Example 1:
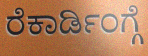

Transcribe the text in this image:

ರೆಕಾರ್ಡಿಂಗ್ಗೆ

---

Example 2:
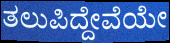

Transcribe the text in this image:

ತಲುಪಿದ್ದೇವೆಯೇ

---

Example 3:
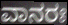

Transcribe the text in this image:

ವಾನರಃ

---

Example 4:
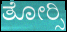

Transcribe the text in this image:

ತೋರ್‍ಸಿ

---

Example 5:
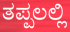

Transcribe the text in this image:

ತಪ್ಪಲಲ್ಲಿ